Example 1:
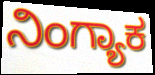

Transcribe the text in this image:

ನಿಂಗ್ಯಾಕ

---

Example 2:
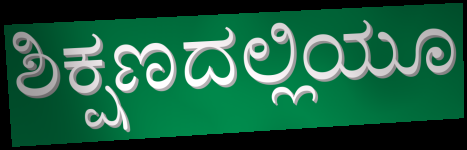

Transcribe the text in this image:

ಶಿಕ್ಷಣದಲ್ಲಿಯೂ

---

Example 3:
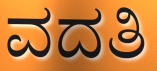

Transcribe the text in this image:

ವದತಿ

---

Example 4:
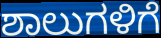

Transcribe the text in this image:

ಶಾಲುಗಳಿಗೆ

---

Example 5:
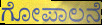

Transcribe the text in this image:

ಗೋಪಾಲನೆ